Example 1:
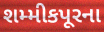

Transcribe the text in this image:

શમ્મીકપૂરના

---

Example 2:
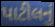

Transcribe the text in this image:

પાટીલનું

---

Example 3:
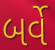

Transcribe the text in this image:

બર્વે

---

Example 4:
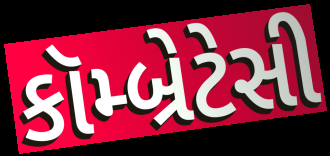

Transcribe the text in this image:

કૉમ્બ્રેટેસી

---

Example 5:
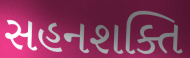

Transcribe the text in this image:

સહનશક્તિ